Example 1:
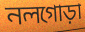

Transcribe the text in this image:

নলগোড়া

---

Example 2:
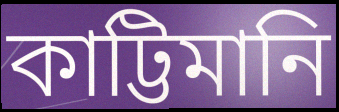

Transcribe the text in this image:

কাট্টিমানি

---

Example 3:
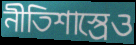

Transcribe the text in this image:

নীতিশাস্ত্রেও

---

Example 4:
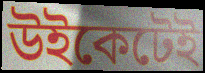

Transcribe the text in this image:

উইকেটেই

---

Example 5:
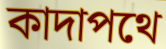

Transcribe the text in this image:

কাদাপথে